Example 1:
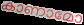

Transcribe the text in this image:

കാണാമോ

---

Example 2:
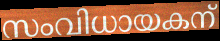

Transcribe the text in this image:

സംവിധായകന്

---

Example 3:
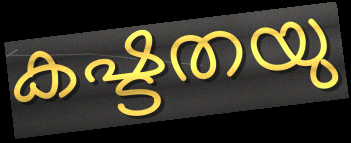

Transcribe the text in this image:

കഷ്ടതയു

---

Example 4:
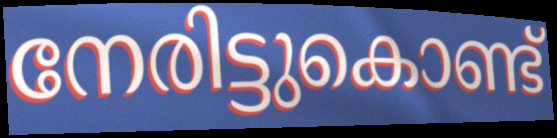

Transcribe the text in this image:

നേരിട്ടുകൊണ്ട്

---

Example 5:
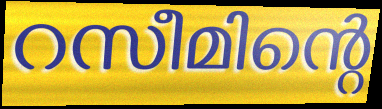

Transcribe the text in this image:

റസീമിന്റെ